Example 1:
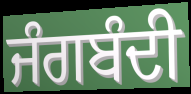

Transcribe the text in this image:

ਜੰਗਬੰਦੀ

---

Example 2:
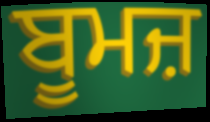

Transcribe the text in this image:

ਬੂਮਜ਼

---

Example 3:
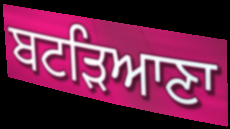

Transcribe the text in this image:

ਬਟੜਿਆਣਾ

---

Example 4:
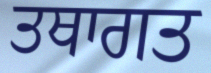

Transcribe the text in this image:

ਤਥਾਗਤ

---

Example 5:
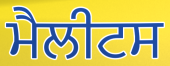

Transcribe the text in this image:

ਮੈਲੀਟਸ